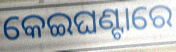
କେଇଘଣ୍ଟାରେ